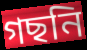
গছনি